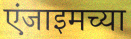
एंजाइमच्या